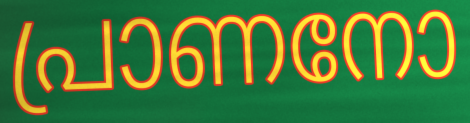
പ്രാണനോ